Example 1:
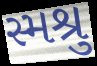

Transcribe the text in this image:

સ્મશ્રુ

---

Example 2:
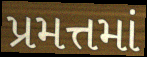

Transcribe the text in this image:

પ્રમત્તમાં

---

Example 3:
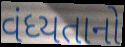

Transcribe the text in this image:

વંધ્યતાનો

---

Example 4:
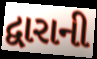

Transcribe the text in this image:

દ્વારાની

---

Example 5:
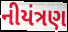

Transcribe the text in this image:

નીયંત્રણ